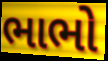
ભાભો